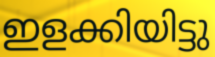
ഇളക്കിയിട്ടു